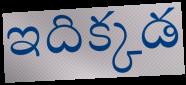
ఇదిక్కడ